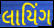
લાયિંગ